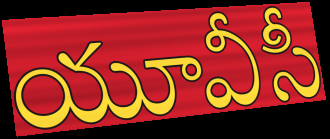
యూవీసీ